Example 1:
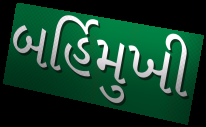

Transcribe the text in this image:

બર્હિમુખી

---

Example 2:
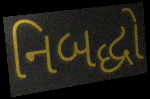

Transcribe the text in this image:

નિબદ્ધો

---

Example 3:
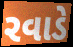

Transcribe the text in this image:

રવાડે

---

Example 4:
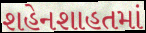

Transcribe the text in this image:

શહેનશાહતમાં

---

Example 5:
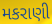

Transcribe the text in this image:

મકરાણી